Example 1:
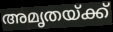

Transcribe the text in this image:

അമൃതയ്ക്ക്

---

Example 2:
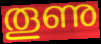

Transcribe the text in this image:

തൂണു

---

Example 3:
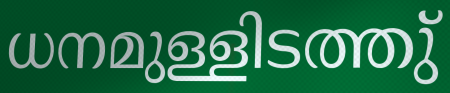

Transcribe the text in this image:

ധനമുള്ളിടത്തു്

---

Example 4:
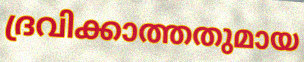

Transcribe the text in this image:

ദ്രവിക്കാത്തതുമായ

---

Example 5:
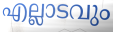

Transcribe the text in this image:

എല്ലാടവും